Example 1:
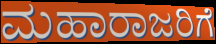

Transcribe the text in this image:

ಮಹಾರಾಜರಿಗೆ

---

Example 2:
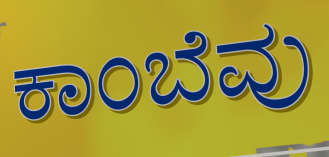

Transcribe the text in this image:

ಕಾಂಬೆವು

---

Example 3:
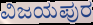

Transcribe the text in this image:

ವಿಜಯಪುರ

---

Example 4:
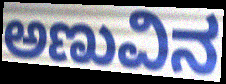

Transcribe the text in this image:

ಅಣುವಿನ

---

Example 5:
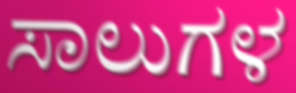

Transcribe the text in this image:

ಸಾಲುಗಳ